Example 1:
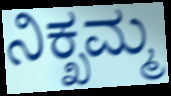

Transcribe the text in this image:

ನಿಕ್ಖಮ್ಮ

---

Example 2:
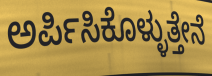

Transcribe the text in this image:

ಅರ್ಪಿಸಿಕೊಳ್ಳುತ್ತೇನೆ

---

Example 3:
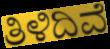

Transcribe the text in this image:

ತಿಳಿದಿವೆ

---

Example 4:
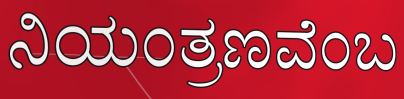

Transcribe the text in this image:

ನಿಯಂತ್ರಣವೆಂಬ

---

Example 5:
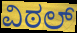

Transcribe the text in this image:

ವಿಠಲ್